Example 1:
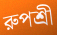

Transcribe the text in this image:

রুপশ্রী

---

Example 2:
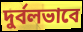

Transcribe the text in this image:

দুর্বলভাবে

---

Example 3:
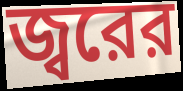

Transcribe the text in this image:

জ্বরের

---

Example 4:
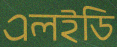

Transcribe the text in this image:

এলইডি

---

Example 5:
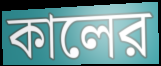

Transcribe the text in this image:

কালের